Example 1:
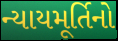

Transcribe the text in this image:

ન્યાયમૂર્તિનો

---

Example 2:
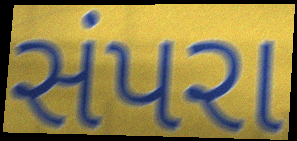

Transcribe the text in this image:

સંપરા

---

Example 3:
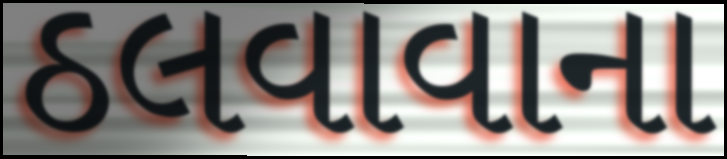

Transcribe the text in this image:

ઠલવાવાના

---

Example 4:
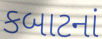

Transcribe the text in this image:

કબાટનાં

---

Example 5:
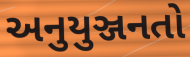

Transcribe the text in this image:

અનુયુઞ્જનતો